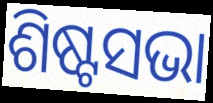
ଶିଷ୍ଟସଭା